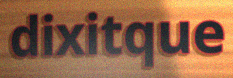
dixitque